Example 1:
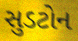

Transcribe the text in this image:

સુડટોન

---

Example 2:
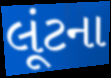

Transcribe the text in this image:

લૂંટના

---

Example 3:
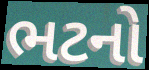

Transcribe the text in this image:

ભટનો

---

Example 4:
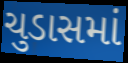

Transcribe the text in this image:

ચુડાસમાં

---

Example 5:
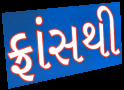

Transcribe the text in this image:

ફ્રાંસથી